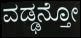
ವಡ್ಢನ್ತೋ